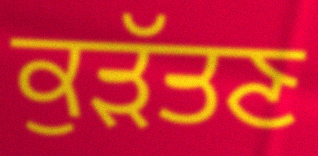
ਕੁੜੱਤਣ